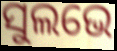
ସୁଲଭେ